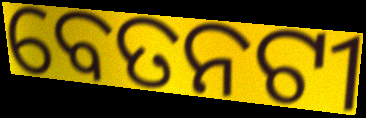
ବେତନଟୀ